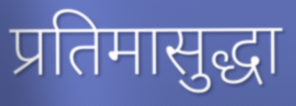
प्रतिमासुद्धा